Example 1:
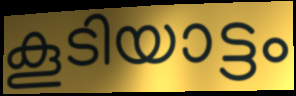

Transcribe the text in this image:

കൂടിയാട്ടം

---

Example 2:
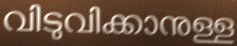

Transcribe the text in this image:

വിടുവിക്കാനുള്ള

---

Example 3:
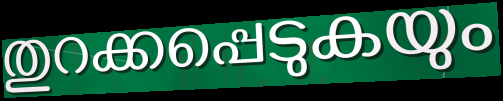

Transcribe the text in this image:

തുറക്കപ്പെടുകയും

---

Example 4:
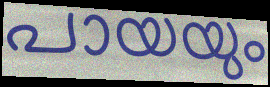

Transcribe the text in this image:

പായയും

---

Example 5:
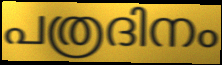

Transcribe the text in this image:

പത്രദിനം